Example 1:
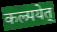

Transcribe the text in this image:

कल्पयेत्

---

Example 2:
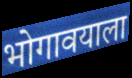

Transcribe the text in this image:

भोगावयाला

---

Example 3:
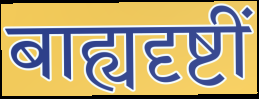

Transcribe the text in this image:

बाह्यदृष्टीं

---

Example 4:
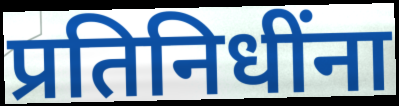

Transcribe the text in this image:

प्रतिनिधींना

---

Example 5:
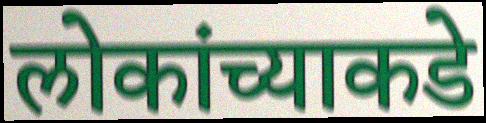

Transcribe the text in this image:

लोकांच्याकडे